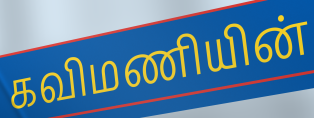
கவிமணியின்